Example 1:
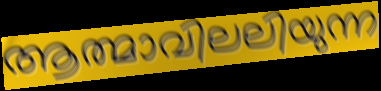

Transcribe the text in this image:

ആത്മാവിലലിയുന്ന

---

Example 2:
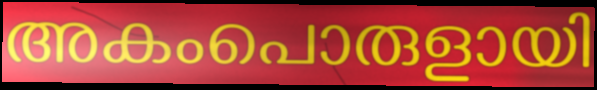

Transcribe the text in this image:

അകംപൊരുളായി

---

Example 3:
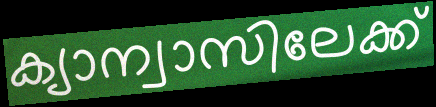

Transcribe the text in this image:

ക്യാന്വാസിലേക്ക്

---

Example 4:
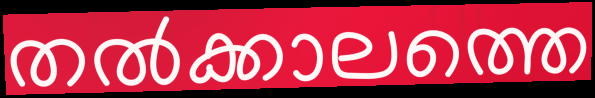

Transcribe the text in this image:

തൽക്കാലത്തെ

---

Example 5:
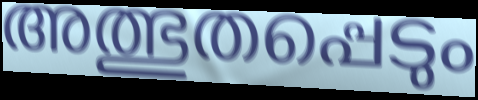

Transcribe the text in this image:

അത്ഭുതപ്പെടും